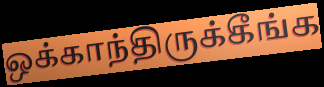
ஒக்காந்திருக்கீங்க